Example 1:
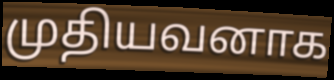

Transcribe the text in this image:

முதியவனாக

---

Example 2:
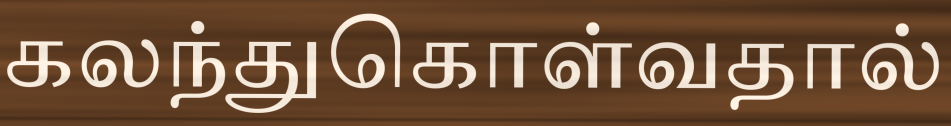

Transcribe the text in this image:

கலந்துகொள்வதால்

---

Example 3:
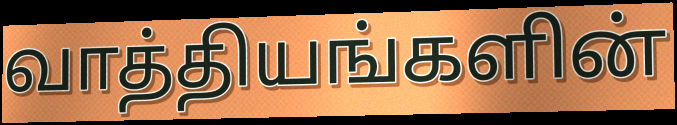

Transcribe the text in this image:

வாத்தியங்களின்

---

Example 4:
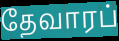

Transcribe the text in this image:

தேவாரப்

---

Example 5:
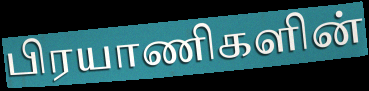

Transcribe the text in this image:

பிரயாணிகளின்